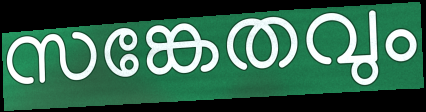
സങ്കേതവും